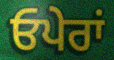
ਓਪੇਰਾਂ